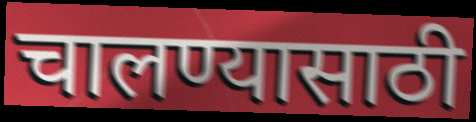
चालण्यासाठी